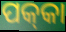
ପକ୍‍କା